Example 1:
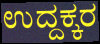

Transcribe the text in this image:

ಉದ್ದಕ್ಕರ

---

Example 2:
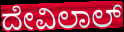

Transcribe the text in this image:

ದೇವಿಲಾಲ್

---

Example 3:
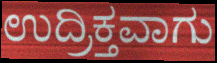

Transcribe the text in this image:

ಉದ್ರಿಕ್ತವಾಗು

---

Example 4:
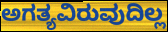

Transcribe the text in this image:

ಅಗತ್ಯವಿರುವುದಿಲ್ಲ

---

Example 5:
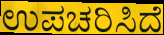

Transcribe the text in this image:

ಉಪಚರಿಸಿದೆ